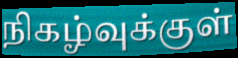
நிகழ்வுக்குள்